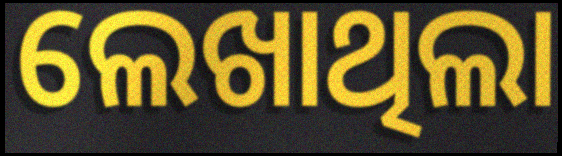
ଲେଖାଥିଲା